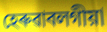
হেৰুৱাবলগীয়া